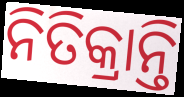
ନିତିକ୍ରାନ୍ତି